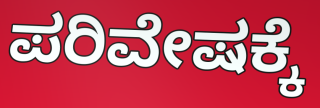
ಪರಿವೇಷಕ್ಕೆ